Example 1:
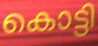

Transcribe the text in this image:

കൊട്ടി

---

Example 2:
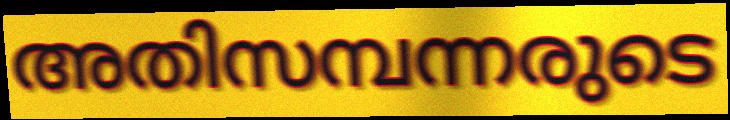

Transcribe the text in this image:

അതിസമ്പന്നരുടെ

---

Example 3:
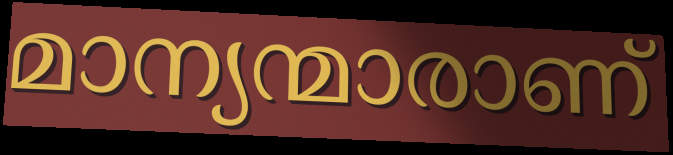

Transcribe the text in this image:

മാന്യന്മാരാണ്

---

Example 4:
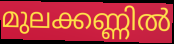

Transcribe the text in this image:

മുലക്കണ്ണിൽ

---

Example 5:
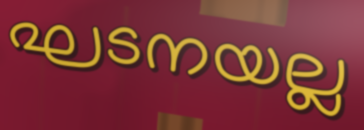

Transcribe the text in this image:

ഘടനയല്ല